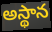
అస్థాన